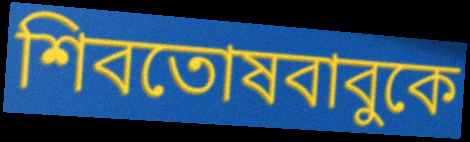
শিবতোষবাবুকে